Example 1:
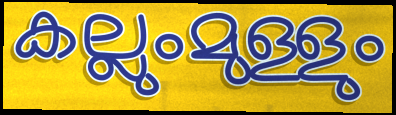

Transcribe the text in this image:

കല്ലുംമുള്ളും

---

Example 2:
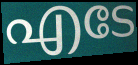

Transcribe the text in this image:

എടേ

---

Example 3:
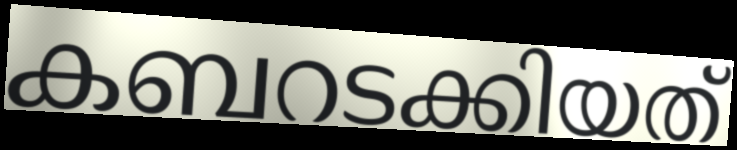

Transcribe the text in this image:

കബറടക്കിയത്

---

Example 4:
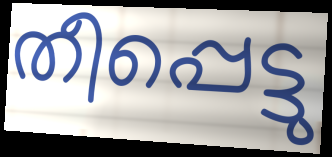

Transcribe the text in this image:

തീപ്പെട്ടു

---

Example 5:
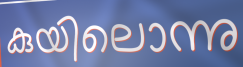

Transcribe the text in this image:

കുയിലൊന്നു